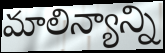
మాలిన్యాన్ని